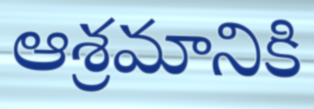
ఆశ్రమానికి